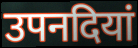
उपनदियां